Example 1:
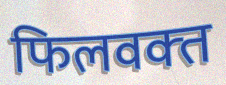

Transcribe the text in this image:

फिलवक्‍त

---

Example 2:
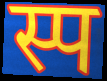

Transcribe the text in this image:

स्प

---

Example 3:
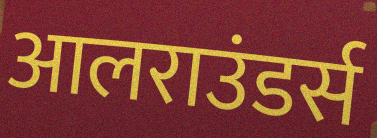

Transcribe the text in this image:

आलराउंडर्स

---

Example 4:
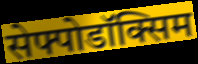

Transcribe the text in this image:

सेफ्पोडॉक्सिम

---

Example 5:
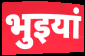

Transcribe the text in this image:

भुइयां